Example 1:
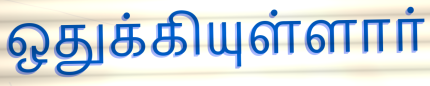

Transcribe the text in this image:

ஒதுக்கியுள்ளார்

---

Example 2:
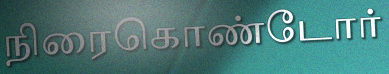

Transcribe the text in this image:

நிரைகொண்டோர்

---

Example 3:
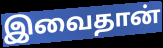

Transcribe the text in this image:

இவைதான்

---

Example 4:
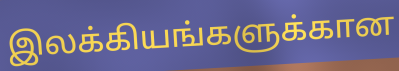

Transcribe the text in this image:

இலக்கியங்களுக்கான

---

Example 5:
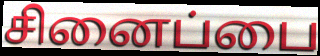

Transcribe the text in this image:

சினைப்பை